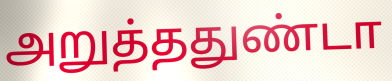
அறுத்ததுண்டா